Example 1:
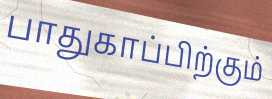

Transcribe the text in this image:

பாதுகாப்பிற்கும்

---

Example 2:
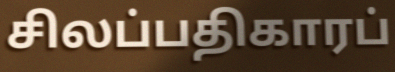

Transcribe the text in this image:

சிலப்பதிகாரப்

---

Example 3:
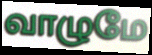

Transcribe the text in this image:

வாழுமே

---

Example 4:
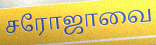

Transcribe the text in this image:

சரோஜாவை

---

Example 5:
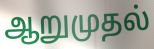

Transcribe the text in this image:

ஆறுமுதல்